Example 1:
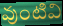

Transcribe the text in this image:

వుంటివి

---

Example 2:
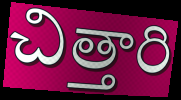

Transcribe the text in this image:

చిత్తారి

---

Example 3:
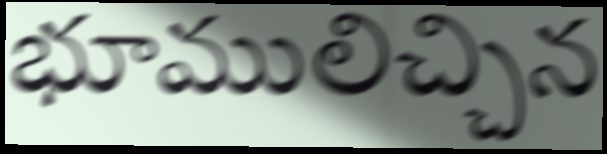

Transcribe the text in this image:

భూములిచ్చిన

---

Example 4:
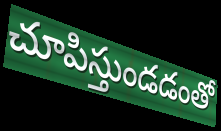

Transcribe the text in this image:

చూపిస్తుండడంతో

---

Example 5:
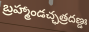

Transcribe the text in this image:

బ్రహ్మాండచ్ఛత్రదణ్డః